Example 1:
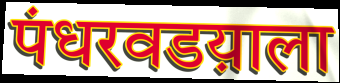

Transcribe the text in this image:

पंधरवडय़ाला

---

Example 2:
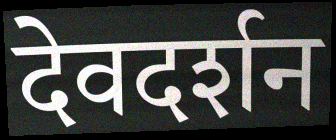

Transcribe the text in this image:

देवदर्शन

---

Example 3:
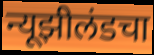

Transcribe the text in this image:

न्यूझीलंडचा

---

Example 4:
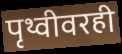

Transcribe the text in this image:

पृथ्वीवरही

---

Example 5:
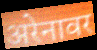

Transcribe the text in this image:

अरेनावर